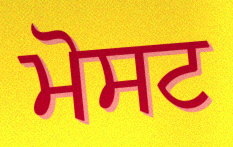
ਮੋਸਟ